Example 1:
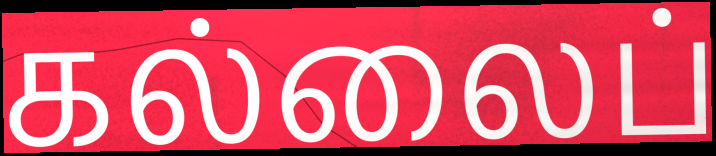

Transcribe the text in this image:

கல்லைப்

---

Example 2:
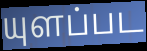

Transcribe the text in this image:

யுளப்பட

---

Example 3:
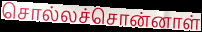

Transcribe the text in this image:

சொல்லச்சொன்னாள்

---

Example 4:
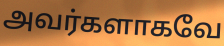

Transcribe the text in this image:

அவர்களாகவே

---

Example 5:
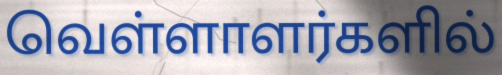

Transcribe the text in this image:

வெள்ளாளர்களில்